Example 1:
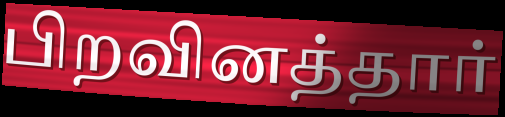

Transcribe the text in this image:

பிறவினத்தார்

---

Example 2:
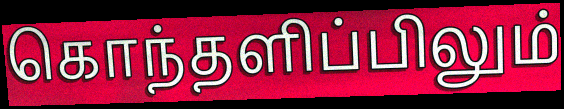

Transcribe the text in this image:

கொந்தளிப்பிலும்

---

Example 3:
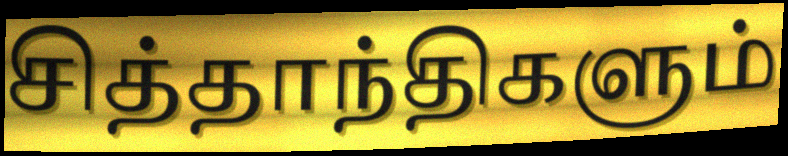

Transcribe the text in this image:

சித்தாந்திகளும்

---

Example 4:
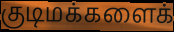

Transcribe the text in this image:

குடிமக்களைக்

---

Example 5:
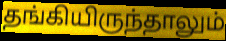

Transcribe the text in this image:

தங்கியிருந்தாலும்